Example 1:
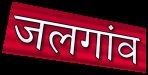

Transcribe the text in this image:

जलगांव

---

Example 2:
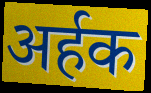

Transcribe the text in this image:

अर्हक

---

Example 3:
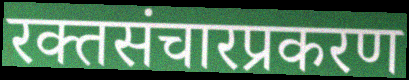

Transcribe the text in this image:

रक्तसंचारप्रकरण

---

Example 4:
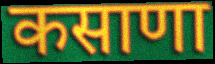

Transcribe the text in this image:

कसाणा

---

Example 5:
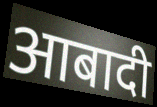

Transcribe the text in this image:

आबादी